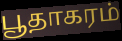
பூதாகரம்